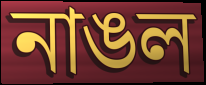
নাঙল